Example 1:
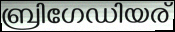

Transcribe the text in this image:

ബ്രിഗേഡിയര്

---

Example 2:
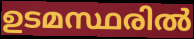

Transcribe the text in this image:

ഉടമസ്ഥരിൽ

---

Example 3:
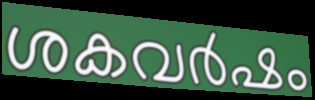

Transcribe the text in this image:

ശകവർഷം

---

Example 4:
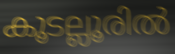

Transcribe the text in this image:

കൂടല്ലൂരിൽ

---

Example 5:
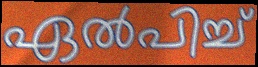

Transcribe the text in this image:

ഏൽപിച്ച്